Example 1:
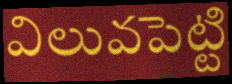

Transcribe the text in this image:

విలువపెట్టి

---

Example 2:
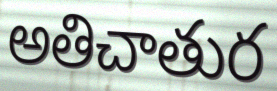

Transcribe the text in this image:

అతిచాతుర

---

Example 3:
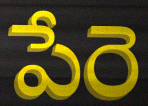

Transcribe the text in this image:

పేరె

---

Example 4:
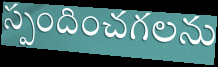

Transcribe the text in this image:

స్పందించగలను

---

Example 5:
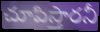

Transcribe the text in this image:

చూపిస్తారనీ